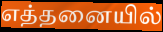
எத்தனையில்